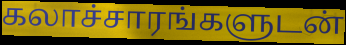
கலாச்சாரங்களுடன்